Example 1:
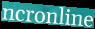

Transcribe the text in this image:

ncronline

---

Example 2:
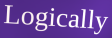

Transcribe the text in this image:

Logically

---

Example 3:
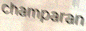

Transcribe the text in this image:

champaran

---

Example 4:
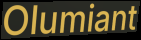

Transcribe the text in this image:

Olumiant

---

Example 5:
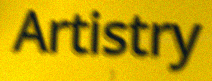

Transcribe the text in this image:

Artistry